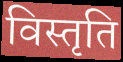
विस्तृति